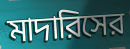
মাদারিসের